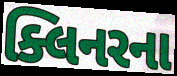
ક્લિનરના